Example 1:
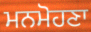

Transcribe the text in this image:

ਮਨਮੋਹਣਾ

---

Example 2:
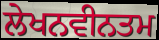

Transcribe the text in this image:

ਲੇਖਨਵੀਨਤਮ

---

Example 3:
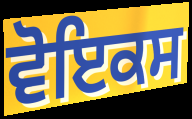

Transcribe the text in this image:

ਵੋਇਕਸ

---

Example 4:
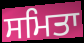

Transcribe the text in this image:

ਸਮਿਤਾ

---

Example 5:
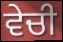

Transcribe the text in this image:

ਵੇਚੀ